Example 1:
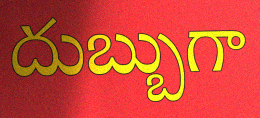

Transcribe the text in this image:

దుబ్బుగా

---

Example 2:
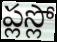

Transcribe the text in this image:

ప్లస్లో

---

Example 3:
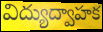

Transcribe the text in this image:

విద్యుద్వాహక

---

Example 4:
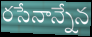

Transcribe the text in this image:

రసేనాన్నేన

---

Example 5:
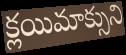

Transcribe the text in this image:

క్లయిమాక్సుని